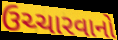
ઉચ્ચારવાનો